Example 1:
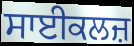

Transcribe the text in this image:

ਸਾਈਕਲਜ਼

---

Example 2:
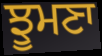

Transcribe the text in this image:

ਝੂਮਣਾ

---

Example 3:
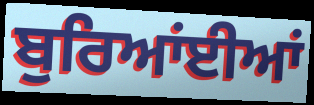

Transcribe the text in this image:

ਬੁਰਿਆਂਈਆਂ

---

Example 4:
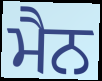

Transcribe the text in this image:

ਮੈਨ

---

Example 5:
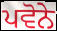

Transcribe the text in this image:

ਪਵੋਨੇ